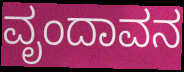
ವೃಂದಾವನ